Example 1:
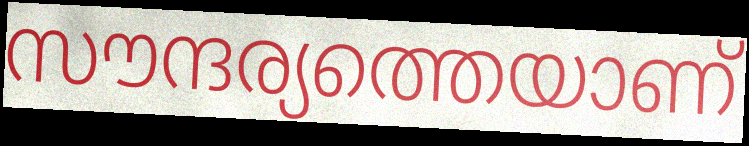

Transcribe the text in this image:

സൗന്ദര്യത്തെയാണ്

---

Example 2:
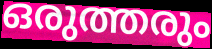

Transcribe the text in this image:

ഒരുത്തരും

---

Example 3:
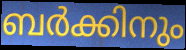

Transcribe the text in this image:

ബർക്കിനും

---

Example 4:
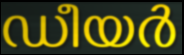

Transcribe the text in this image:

ഡീയർ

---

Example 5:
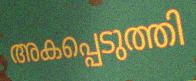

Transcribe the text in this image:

അകപ്പെടുത്തി